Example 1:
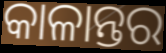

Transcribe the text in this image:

କାଳାନ୍ତର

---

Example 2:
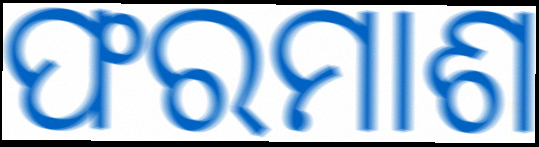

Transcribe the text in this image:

ଫରମାଶ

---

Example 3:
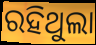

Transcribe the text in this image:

ରହିଥୁଲା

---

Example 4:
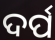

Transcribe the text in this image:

ଦର୍ପ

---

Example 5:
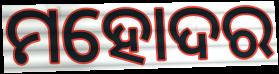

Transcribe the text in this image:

ମହୋଦର